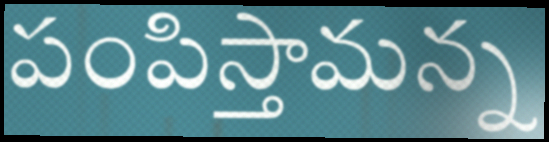
పంపిస్తామన్న